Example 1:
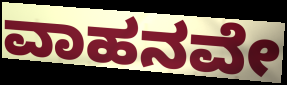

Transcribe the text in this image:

ವಾಹನವೇ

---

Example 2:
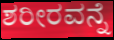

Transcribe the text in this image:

ಶರೀರವನ್ನೆ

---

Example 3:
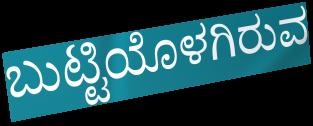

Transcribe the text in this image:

ಬುಟ್ಟಿಯೊಳಗಿರುವ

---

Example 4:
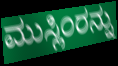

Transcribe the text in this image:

ಮುಸ್ಲಿಂರನ್ನು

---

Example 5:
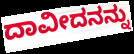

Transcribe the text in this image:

ದಾವೀದನನ್ನು